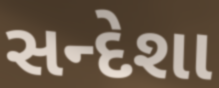
સન્દેશા